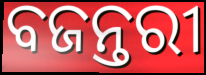
ବଜନ୍ତରୀ